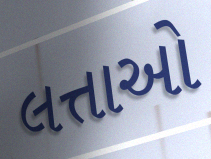
લત્તાઓ